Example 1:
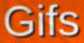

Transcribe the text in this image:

Gifs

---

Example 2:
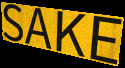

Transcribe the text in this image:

SAKE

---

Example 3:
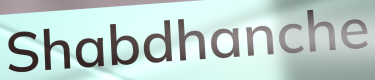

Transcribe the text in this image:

Shabdhanche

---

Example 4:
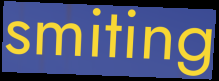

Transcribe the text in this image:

smiting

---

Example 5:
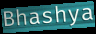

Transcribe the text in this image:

Bhashya